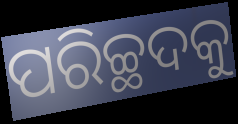
ପରିଚ୍ଛଦକୁ